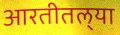
आरतीतल्या